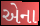
એના